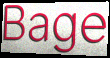
Bage